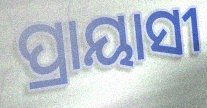
ପ୍ରାୟାସୀ